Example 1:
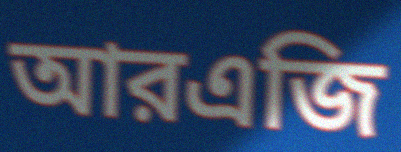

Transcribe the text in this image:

আরএজি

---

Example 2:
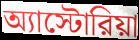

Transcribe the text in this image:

অ্যাস্টোরিয়া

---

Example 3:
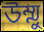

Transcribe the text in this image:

উম্মু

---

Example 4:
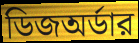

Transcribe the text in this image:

ডিজঅর্ডার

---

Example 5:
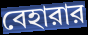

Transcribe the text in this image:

বেহারার